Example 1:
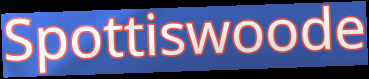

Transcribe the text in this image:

Spottiswoode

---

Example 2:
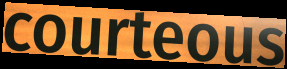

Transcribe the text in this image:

courteous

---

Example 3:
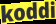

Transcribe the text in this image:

koddi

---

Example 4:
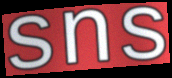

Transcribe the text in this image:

sns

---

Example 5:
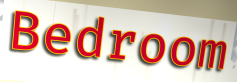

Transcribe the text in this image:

Bedroom